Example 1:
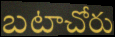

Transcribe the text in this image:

బటాచోరు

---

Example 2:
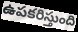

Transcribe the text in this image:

ఉపకరిస్తుంది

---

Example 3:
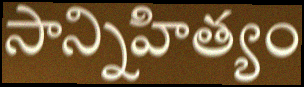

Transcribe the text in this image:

సాన్నిహిత్యం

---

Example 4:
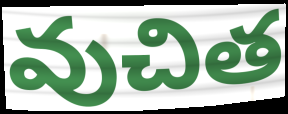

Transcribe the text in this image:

వుచిత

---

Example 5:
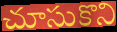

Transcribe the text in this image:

చూసుకొని